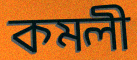
কমলী